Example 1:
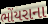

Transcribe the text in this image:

ભોંયરાના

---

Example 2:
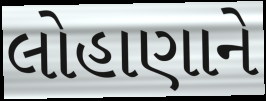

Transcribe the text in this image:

લોહાણાને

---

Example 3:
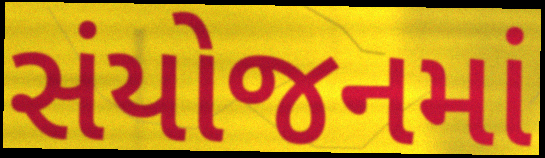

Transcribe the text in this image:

સંયોજનમાં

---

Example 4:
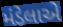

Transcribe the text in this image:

મંડેલાએ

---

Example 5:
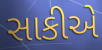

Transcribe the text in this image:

સાકીએ